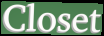
Closet